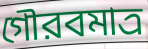
গৌরবমাত্র